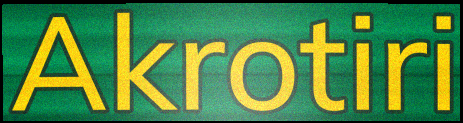
Akrotiri